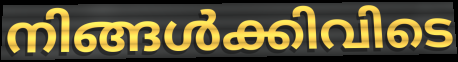
നിങ്ങൾക്കിവിടെ